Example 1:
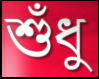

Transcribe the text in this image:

শুঁধু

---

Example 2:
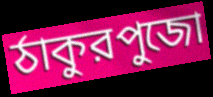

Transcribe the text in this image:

ঠাকুরপুজো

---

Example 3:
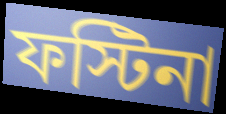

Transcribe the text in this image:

ফস্টিনা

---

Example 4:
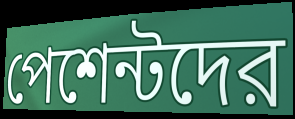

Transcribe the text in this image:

পেশেন্টদের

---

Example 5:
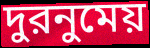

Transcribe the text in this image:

দুরনুমেয়